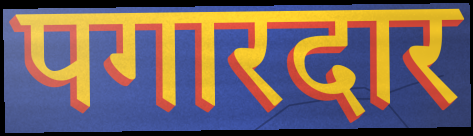
पगारदार